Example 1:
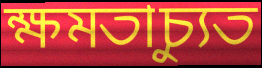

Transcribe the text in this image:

ক্ষমতাচ্যুত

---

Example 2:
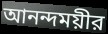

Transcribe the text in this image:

আনন্দময়ীর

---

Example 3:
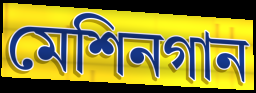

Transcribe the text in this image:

মেশিনগান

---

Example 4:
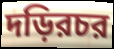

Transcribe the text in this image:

দড়িরচর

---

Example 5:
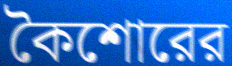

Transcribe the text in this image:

কৈশোরের